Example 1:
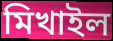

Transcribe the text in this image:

মিখাইল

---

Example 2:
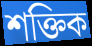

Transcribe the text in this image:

শক্তিক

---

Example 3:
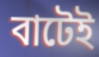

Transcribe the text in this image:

বাটেই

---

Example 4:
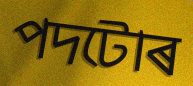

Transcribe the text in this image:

পদটোৰ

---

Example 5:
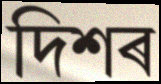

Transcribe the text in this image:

দিশৰ